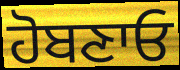
ਹੋਬਣਾਓ